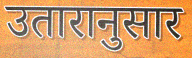
उतारानुसार